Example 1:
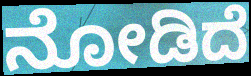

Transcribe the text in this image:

ನೋಡಿದೆ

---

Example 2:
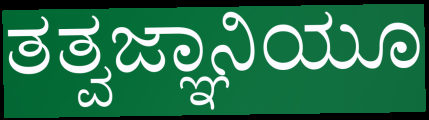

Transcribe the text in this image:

ತತ್ವಜ್ಞಾನಿಯೂ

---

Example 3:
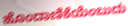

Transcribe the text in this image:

ಹೊಂದಾಣಿಕೆಯೆಂಬುದು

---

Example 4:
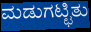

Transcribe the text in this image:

ಮಡುಗಟ್ಟಿತು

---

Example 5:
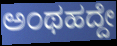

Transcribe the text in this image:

ಅಂಥಹದ್ದೇ